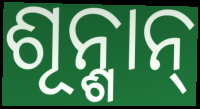
ଶୂନ୍ଶାନ୍